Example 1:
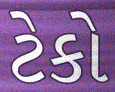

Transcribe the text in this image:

ટેકો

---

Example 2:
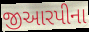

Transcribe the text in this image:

જીઆરપીના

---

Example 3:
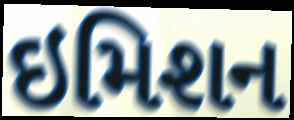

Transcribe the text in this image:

ઇમિશન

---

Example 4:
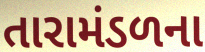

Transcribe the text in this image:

તારામંડળના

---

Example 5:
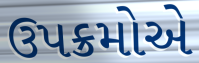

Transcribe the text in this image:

ઉપક્રમોએ